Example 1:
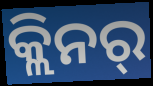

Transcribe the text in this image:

କ୍ଲିନର୍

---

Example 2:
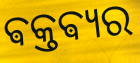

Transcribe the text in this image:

ଵକ୍ତଵ୍ୟର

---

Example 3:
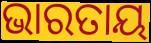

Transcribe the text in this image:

ଭାରତାୟ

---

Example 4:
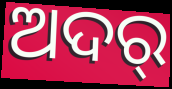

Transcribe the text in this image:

ଅଦର୍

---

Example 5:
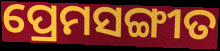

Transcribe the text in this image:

ପ୍ରେମସଙ୍ଗୀତ